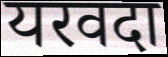
यरवदा